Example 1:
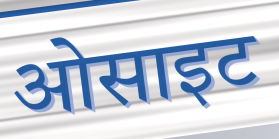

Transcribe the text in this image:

ओसाइट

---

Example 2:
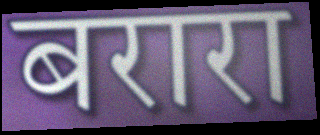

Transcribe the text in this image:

बरारा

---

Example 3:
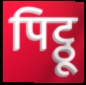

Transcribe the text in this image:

पिट्ठू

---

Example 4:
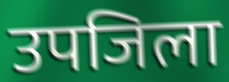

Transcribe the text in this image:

उपजिला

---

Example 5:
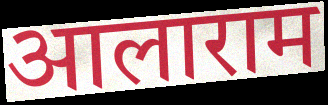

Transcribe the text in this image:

आलाराम